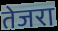
तेजरा